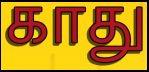
காது